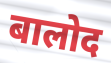
बालोद